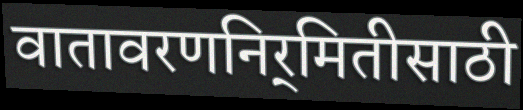
वातावरणनिर्मितीसाठी